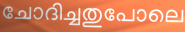
ചോദിച്ചതുപോലെ